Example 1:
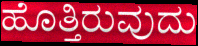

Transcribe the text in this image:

ಹೊತ್ತಿರುವುದು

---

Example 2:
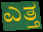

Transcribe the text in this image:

ಎತ್ತ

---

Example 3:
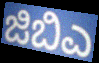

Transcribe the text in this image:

ಜಿಬಿಎ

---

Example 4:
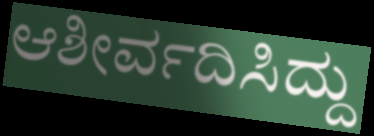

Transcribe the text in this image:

ಆಶೀರ್ವದಿಸಿದ್ದು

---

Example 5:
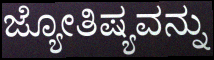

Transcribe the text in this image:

ಜ್ಯೋತಿಷ್ಯವನ್ನು